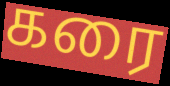
கரை